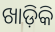
ଖାଡ଼ିକି